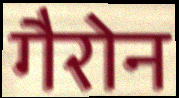
गैरोन